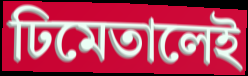
ঢিমেতালেই